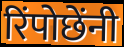
रिंपोछेंनी